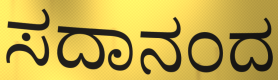
ಸದಾನಂದ